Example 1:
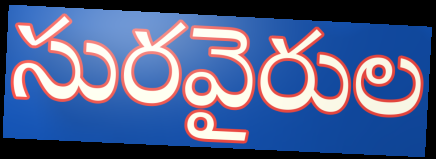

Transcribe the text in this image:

సురవైరుల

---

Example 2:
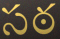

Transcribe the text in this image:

సఠ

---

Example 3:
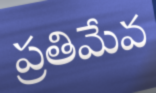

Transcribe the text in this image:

ప్రతిమేవ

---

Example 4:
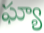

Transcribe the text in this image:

ఘ్యా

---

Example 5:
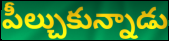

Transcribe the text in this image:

పీల్చుకున్నాడు